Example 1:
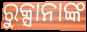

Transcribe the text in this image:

ରୁକ୍ସାନାଙ୍କ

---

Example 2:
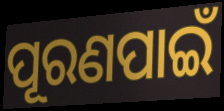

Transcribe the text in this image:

ପୂରଣପାଇଁ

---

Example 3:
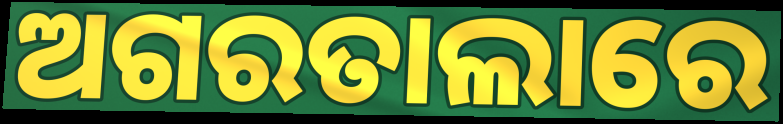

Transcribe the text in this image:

ଅଗରତାଲାରେ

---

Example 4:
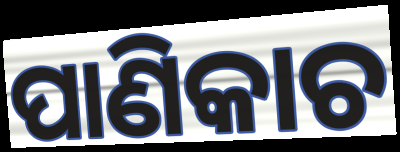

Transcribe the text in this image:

ପାଣିକାଚ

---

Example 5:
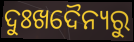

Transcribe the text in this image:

ଦୁଃଖଦୈନ୍ୟରୁ